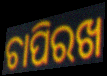
ଚାପିରଖ